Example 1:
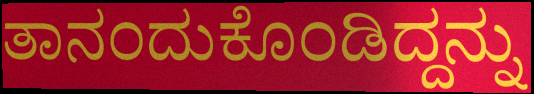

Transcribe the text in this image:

ತಾನಂದುಕೊಂಡಿದ್ದನ್ನು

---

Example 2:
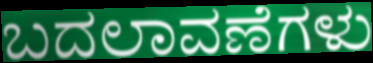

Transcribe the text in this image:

ಬದಲಾವಣೆಗಳು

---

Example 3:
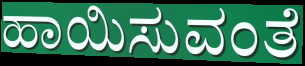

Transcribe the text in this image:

ಹಾಯಿಸುವಂತೆ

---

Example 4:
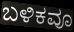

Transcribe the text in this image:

ಬಳಿಕವೂ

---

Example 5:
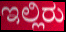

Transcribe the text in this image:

ಇಲ್ಲಿರು